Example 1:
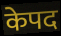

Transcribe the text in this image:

केपद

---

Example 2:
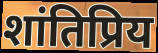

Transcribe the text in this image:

शांतिप्रिय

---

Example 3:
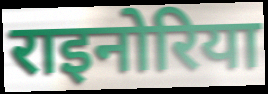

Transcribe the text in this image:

राइनोरिया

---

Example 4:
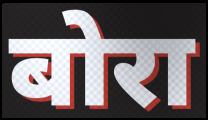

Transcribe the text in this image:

बोरा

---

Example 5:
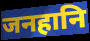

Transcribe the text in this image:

जनहानि